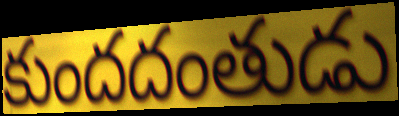
కుందదంతుడు